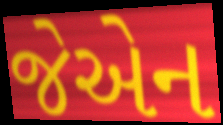
જેએન